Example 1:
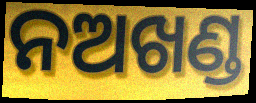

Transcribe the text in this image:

ନଅଖଣ୍ଡ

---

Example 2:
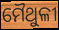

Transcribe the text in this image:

ମୈଥୁଳୀ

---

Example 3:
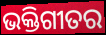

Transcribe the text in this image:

ଭକ୍ତିଗୀତର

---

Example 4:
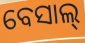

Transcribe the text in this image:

ବେସାଲ୍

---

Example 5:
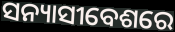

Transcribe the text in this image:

ସନ୍ୟାସୀବେଶରେ